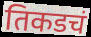
तिकडचं